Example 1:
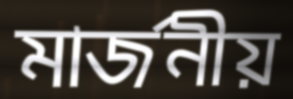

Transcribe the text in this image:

মার্জনীয়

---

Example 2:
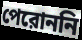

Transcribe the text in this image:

পেরোননি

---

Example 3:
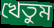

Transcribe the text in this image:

খেতুম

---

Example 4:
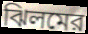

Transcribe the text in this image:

ঝিলমের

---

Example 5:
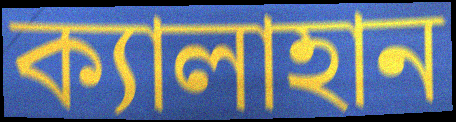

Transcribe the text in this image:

ক্যালাহান